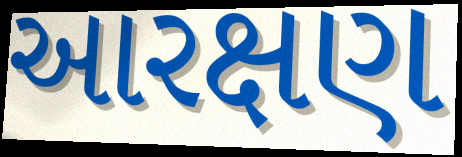
આરક્ષણ